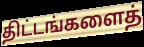
திட்டங்களைத்